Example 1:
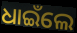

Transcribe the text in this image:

ଧାଇଁଲେ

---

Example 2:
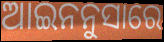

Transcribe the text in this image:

ଆଇନନୁସାରେ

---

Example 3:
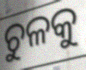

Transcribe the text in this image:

ଚୁଳକୁ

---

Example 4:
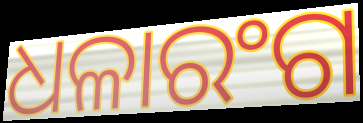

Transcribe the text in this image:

ଧଳାରଂଗ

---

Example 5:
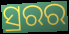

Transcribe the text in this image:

ସ୍ରରର